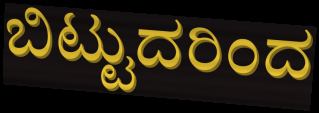
ಬಿಟ್ಟುದರಿಂದ